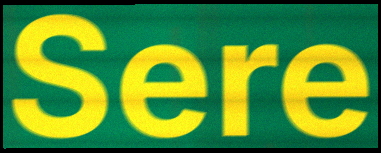
Sere